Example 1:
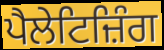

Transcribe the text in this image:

ਪੈਲੇਟਿਜ਼ਿੰਗ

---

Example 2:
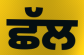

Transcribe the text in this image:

ਛੱਲ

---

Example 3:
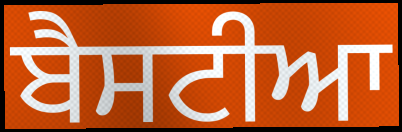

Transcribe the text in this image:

ਬੈਸਟੀਆ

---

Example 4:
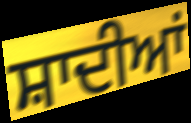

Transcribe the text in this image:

ਸ਼ਾਦੀਆਂ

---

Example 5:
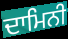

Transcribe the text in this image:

ਦਾਮਿਨੀ